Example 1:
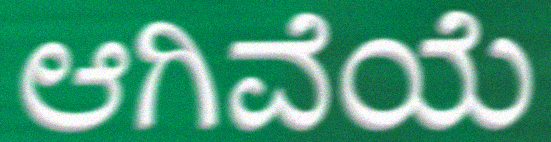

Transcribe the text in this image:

ಆಗಿವೆಯೆ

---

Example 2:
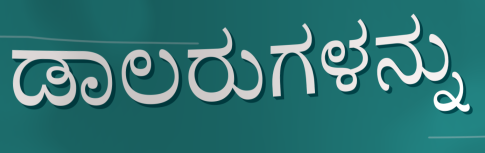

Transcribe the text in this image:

ಡಾಲರುಗಳನ್ನು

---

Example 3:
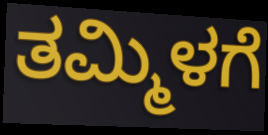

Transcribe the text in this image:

ತಮ್ಮಿಳಗೆ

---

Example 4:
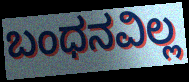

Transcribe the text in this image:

ಬಂಧನವಿಲ್ಲ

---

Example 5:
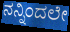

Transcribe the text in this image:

ನನ್ನಿಂದಲೇ